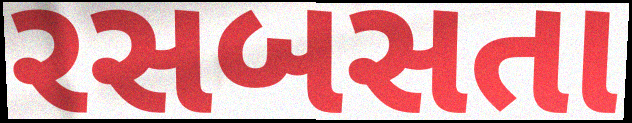
રસબસતા